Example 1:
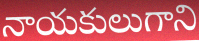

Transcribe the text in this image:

నాయకులుగాని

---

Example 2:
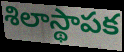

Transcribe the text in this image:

శిలాస్థాపక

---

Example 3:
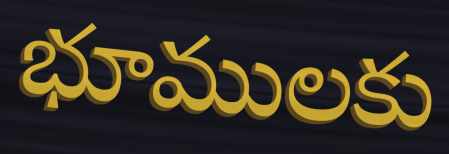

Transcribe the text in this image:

భూములకు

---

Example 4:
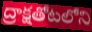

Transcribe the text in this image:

ద్రాక్షతోటలోని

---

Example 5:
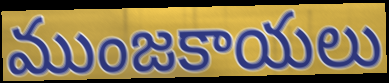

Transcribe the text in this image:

ముంజకాయలు